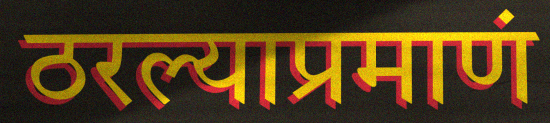
ठरल्याप्रमाणं